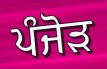
ਪੰਜੋੜ